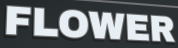
FLOWER